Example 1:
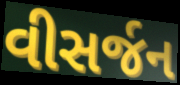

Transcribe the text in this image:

વીસર્જન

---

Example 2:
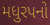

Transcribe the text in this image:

મધુરપનો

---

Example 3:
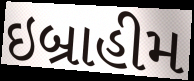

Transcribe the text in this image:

ઇબ્રાહીમ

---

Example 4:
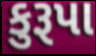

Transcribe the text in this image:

કુરૂપા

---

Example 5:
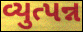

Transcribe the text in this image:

વ્યુત્પન્ન